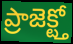
ప్రాజెక్ట్తో